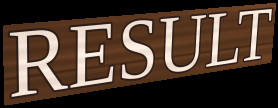
RESULT